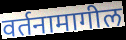
वर्तनामागील